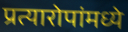
प्रत्यारोपांमध्ये